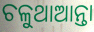
ଚଳୁଥାଆନ୍ତା